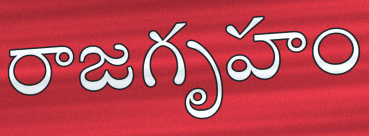
రాజగృహం